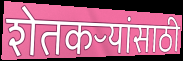
शेतकऱ्यांसाठी